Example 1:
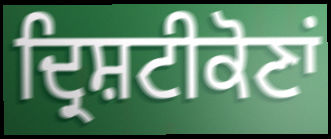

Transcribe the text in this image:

ਦ੍ਰਿਸ਼ਟੀਕੋਣਾਂ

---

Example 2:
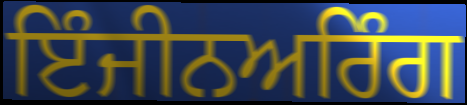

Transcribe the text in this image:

ਇੰਜੀਨਅਰਿੰਗ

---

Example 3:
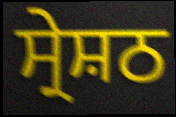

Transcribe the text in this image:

ਸ੍ਰੇਸ਼ਠ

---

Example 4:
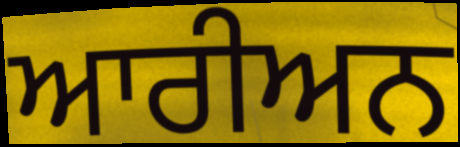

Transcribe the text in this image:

ਆਰੀਅਨ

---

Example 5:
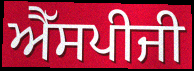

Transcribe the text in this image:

ਐੱਸਪੀਜੀ